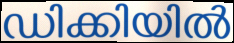
ഡിക്കിയിൽ